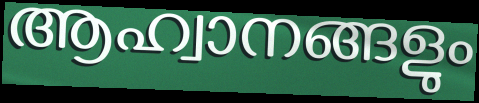
ആഹ്വാനങ്ങളും